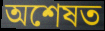
অশেষত